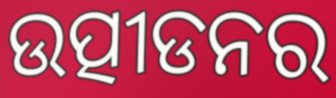
ଉତ୍ପୀଡନର